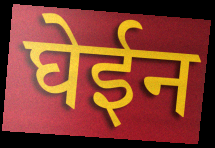
घेईन